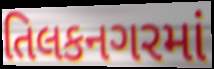
તિલકનગરમાં